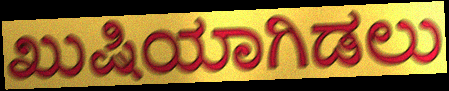
ಖುಷಿಯಾಗಿಡಲು